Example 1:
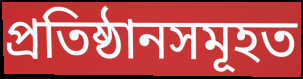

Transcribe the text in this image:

প্ৰতিষ্ঠানসমূহত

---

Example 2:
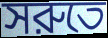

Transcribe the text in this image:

সৰুতে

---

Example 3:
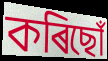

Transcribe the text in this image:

কৰিছোঁ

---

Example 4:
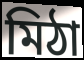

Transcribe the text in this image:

মিঠা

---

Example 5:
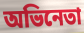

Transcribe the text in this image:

অভিনেতা